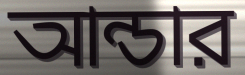
আন্ডার